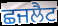
ਛਜਲੈਟ